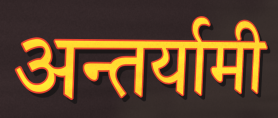
अन्‍तर्यामी